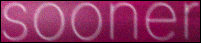
sooner